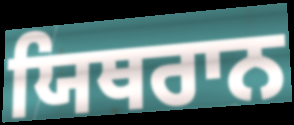
ਯਿਥਰਾਨ